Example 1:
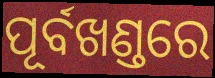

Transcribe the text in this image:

ପୂର୍ବଖଣ୍ଡରେ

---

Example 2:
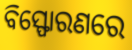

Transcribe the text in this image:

ବିସ୍ଫୋରଣରେ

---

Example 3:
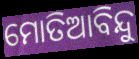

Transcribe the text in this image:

ମୋତିଆବିନ୍ଦୁ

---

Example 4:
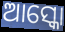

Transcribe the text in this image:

ଆସ୍କୋ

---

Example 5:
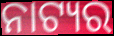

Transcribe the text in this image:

ନାଟ୍ୟର